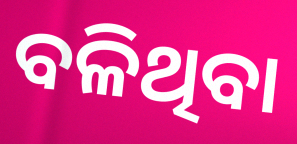
ବଳିଥିବା